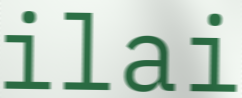
ilai